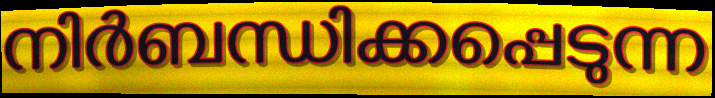
നിർബന്ധിക്കപ്പെടുന്ന